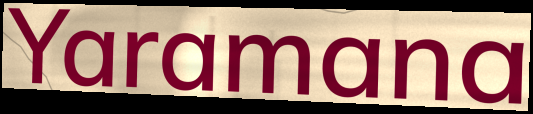
Yaramana